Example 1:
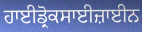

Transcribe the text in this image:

ਹਾਈਡ੍ਰੋਕਸਾਈਜ਼ਾਈਨ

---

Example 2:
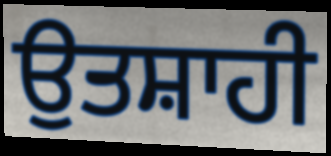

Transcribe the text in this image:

ਉਤਸ਼ਾਹੀ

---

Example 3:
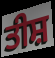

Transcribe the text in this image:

ਤੀਸ਼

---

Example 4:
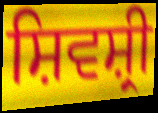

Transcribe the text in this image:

ਸ਼ਿਵਸ਼੍ਰੀ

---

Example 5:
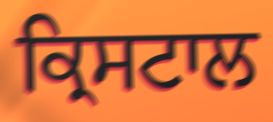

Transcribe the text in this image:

ਕ੍ਰਿਸਟਾਲ